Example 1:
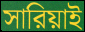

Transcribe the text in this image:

সারিয়াই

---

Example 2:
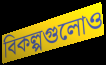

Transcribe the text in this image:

বিকল্পগুলোও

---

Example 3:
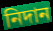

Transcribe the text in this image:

নিদান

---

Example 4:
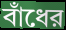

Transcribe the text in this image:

বাঁধের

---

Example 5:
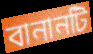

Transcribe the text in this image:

বানানটি